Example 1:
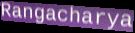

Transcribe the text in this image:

Rangacharya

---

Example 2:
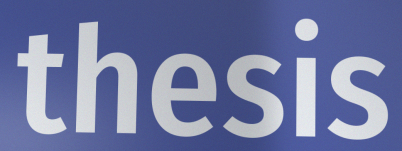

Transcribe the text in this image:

thesis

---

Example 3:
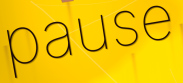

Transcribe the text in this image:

pause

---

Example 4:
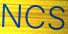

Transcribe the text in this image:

NCS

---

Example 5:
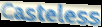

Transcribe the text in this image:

Casteless